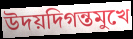
উদয়দিগন্তমুখে